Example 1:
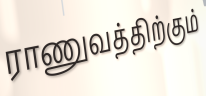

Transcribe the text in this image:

ராணுவத்திற்கும்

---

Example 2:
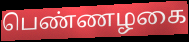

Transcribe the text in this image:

பெண்ணழகை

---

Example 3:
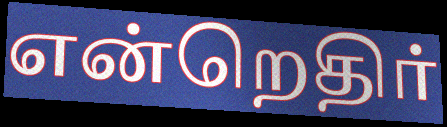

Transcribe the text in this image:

என்றெதிர்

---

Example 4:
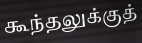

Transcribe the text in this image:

கூந்தலுக்குத்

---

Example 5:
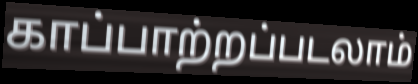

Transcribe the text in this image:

காப்பாற்றப்படலாம்